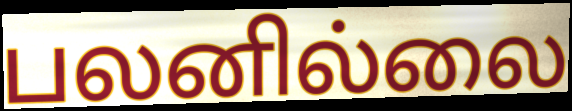
பலனில்லை